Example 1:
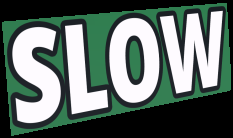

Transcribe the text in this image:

SLOW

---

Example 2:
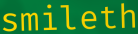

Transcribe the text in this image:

smileth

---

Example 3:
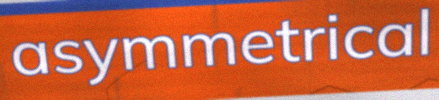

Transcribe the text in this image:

asymmetrical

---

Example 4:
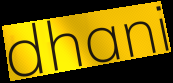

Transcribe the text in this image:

dhani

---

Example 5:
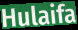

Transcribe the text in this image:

Hulaifa